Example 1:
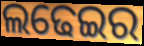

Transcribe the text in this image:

ଲଢେଇର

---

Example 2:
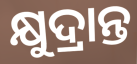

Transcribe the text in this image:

କ୍ଷୁଦ୍ରାନ୍ତ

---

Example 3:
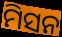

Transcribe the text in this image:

ମିସନ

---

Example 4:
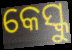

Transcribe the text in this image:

କେସ୍କୁ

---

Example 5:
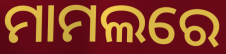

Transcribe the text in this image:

ମାମଲରେ